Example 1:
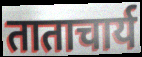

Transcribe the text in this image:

ताताचार्य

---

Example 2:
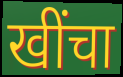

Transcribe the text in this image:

खींचा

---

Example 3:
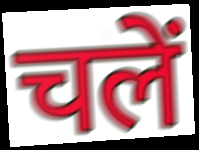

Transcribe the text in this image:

चलें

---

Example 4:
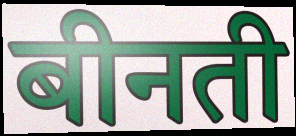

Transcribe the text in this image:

बीनती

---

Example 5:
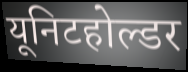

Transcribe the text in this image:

यूनिटहोल्डर